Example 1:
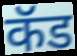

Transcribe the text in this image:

कॅड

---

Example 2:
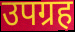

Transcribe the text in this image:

उपग्रह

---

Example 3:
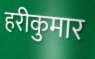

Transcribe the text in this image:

हरीकुमार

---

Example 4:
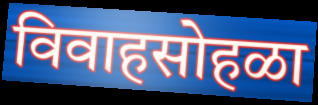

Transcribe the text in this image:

विवाहसोहळा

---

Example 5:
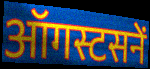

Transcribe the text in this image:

ऑगस्टसनें